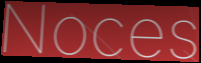
Noces